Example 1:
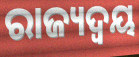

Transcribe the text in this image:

ରାଜ୍ୟଦ୍ୱୟ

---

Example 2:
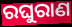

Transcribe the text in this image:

ରଘୁରାଣ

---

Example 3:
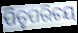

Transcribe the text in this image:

ପିତୃପରିଚୟ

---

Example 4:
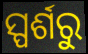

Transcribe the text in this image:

ସ୍ପର୍ଶରୁ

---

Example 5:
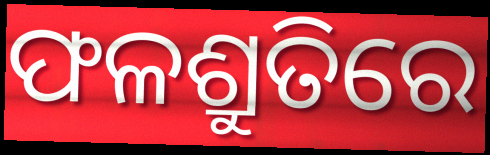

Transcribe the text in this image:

ଫଳଶ୍ରୁତିରେ